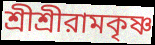
শ্রীশ্রীরামকৃষ্ণ